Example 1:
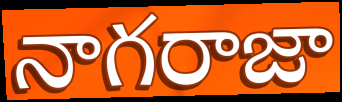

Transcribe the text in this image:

నాగరాజా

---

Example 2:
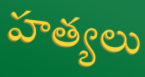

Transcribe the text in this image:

హత్యలు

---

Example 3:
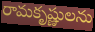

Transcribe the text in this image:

రామకృష్ణులను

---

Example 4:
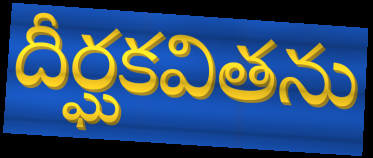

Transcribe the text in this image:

దీర్ఘకవితను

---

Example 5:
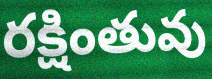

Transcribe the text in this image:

రక్షింతువు